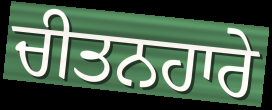
ਚੀਤਨਹਾਰੇ